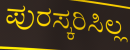
ಪುರಸ್ಕರಿಸಿಲ್ಲ